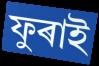
ফুৰাই